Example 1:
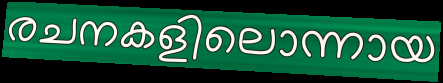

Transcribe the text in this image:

രചനകളിലൊന്നായ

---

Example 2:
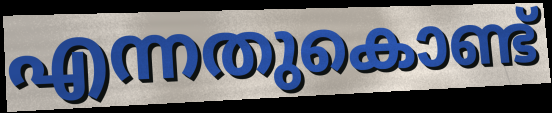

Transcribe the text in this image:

എന്നതുകൊണ്ട്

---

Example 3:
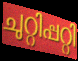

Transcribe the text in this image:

ചുറ്റിപ്പറ്റി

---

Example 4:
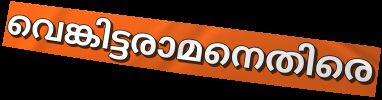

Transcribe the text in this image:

വെങ്കിട്ടരാമനെതിരെ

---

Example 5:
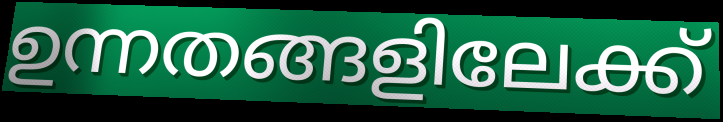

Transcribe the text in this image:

ഉന്നതങ്ങളിലേക്ക്